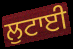
ਲੁਟਾਈ